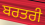
ਬਰਤਰੀ